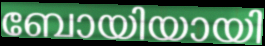
ബോയിയായി